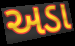
અડા